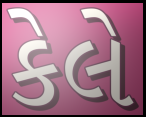
કેલે